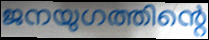
ജനയുഗത്തിന്റെ